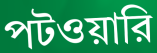
পটওয়ারি